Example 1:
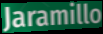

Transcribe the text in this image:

Jaramillo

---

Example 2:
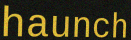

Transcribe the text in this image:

haunch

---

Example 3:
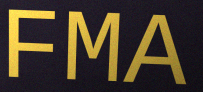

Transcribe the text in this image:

FMA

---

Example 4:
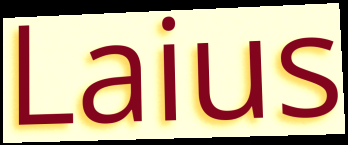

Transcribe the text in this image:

Laius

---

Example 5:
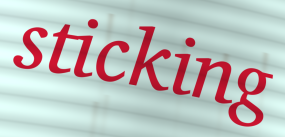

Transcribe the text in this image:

sticking